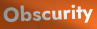
Obscurity